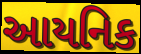
આયનિક